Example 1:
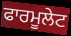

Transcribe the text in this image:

ਫਾਰਮੂਲੇਟ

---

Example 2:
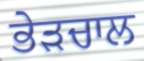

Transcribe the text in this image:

ਭੇੜਚਾਲ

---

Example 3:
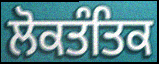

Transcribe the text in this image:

ਲੋਕਤੰਤਿਕ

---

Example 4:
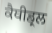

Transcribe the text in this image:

ਕੈਥੀਡ੍ਰਲ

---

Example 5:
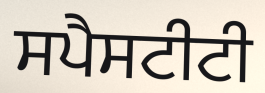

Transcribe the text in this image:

ਸਪੈਸਟੀਟੀ